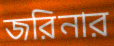
জরিনার